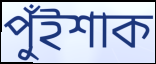
পুঁইশাক